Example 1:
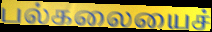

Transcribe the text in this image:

பல்கலையைச்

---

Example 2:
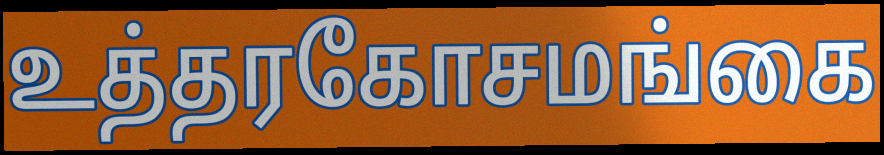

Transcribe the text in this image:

உத்தரகோசமங்கை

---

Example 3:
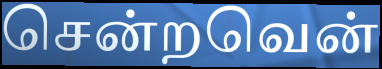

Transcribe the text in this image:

சென்றவென்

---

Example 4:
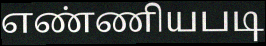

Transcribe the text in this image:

எண்ணியபடி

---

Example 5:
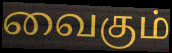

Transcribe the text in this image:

வைகும்